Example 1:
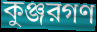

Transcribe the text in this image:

কুঞ্জরগণ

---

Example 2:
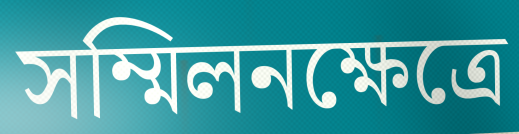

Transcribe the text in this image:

সম্মিলনক্ষেত্রে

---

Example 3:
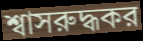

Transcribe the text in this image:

শ্বাসরুদ্ধকর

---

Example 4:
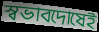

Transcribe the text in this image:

স্বভাবদোষেই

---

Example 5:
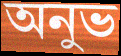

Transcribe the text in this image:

অনুভ